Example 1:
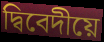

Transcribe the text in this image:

দ্বিবেদীয়ে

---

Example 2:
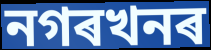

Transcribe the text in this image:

নগৰখনৰ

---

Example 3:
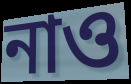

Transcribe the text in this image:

নাও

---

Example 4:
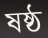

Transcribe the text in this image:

ষষ্ঠ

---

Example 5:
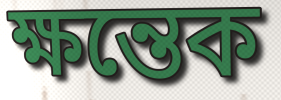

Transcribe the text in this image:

ক্ষন্তেক